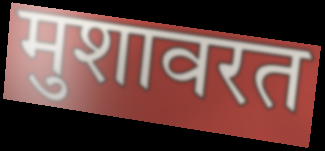
मुशावरत